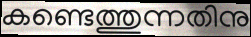
കണ്ടെത്തുന്നതിനു